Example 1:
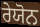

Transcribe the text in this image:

ਰੇਯੋਨ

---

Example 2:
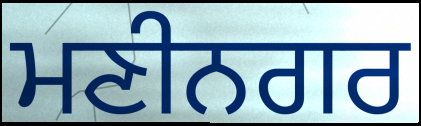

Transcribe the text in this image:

ਮਣੀਨਗਰ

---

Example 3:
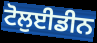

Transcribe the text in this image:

ਟੋਲੁਈਡੀਨ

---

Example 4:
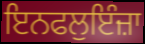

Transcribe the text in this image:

ਇਨਫਲੁਇੰਜ਼ਾ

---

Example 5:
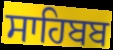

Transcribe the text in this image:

ਸਾਹਿਬਬ